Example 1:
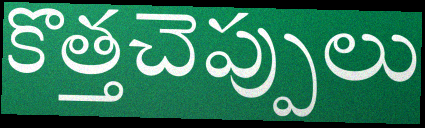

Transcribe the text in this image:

కొత్తచెప్పులు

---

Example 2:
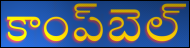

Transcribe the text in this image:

కాంప్‌బెల్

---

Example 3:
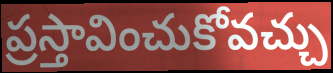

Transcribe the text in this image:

ప్రస్తావించుకోవచ్చు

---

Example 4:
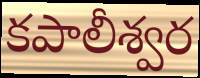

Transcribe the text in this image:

కపాలీశ్వర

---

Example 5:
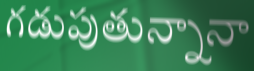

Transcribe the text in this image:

గడుపుతున్నానా